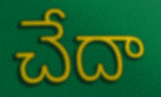
చేదా